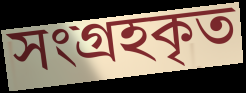
সংগ্রহকৃত